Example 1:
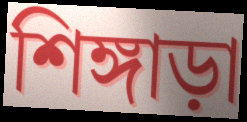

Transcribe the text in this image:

শিঙ্গাড়া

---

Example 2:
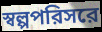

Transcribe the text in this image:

স্বল্পপরিসরে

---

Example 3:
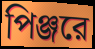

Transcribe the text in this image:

পিঞ্জরে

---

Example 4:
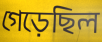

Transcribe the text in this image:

গেড়েছিল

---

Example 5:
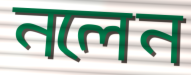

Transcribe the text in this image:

নলেন